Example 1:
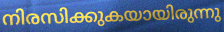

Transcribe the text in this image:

നിരസിക്കുകയായിരുന്നു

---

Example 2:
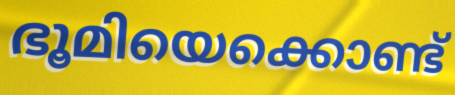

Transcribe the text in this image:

ഭൂമിയെക്കൊണ്ട്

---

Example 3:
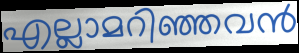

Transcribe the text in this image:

എല്ലാമറിഞ്ഞവൻ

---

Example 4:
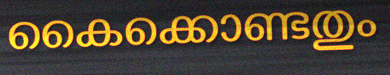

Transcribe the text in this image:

കൈക്കൊണ്ടതും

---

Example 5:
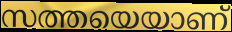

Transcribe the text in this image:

സത്തയെയാണ്